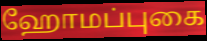
ஹோமப்புகை